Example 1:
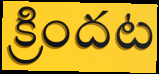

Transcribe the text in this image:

క్రిందట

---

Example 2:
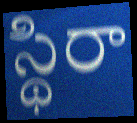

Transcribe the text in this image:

స్థిరా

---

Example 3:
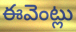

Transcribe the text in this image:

ఈవెంట్లు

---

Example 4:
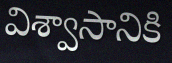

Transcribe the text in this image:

విశ్వాసానికి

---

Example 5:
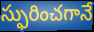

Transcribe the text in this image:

స్ఫురించగానే